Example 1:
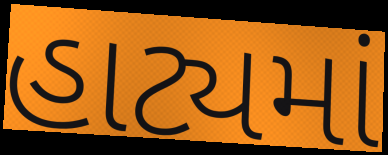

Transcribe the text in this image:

હાટ્યમાં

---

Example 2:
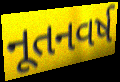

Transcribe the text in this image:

નૂતનવર્ષ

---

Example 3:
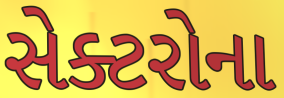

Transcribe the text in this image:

સેક્ટરોના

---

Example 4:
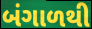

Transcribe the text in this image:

બંગાળથી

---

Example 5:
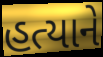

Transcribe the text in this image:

હત્યાને